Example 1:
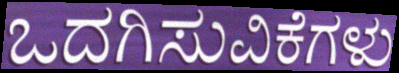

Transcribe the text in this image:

ಒದಗಿಸುವಿಕೆಗಳು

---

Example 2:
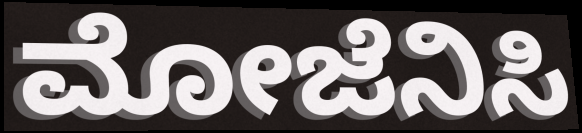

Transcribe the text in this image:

ಮೋಜೆನಿಸಿ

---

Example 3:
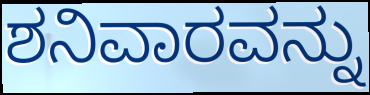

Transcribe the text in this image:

ಶನಿವಾರವನ್ನು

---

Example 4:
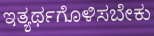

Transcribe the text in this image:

ಇತ್ಯರ್ಥಗೊಳಿಸಬೇಕು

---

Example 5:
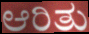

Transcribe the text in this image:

ಆರಿತು